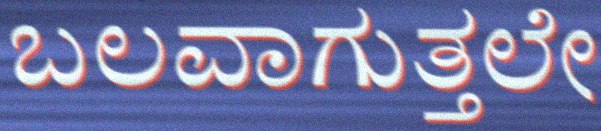
ಬಲವಾಗುತ್ತಲೇ